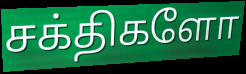
சக்திகளோ